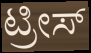
ಟ್ರೀಸ್